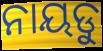
ନାୟଡୁ